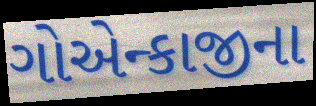
ગોએન્કાજીના